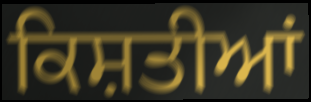
ਕਿਸ਼ਤੀਆਂ